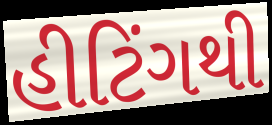
હીટિંગથી